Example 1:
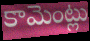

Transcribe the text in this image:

కామెంట్లు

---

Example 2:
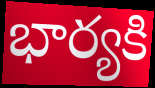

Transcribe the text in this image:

భార్యకి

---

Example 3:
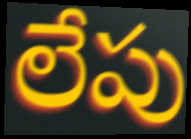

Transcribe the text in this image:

లేపు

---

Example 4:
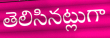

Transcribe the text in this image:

తెలిసినట్లుగా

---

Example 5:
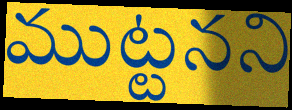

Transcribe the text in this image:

ముట్టనని